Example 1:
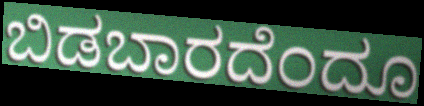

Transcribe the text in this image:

ಬಿಡಬಾರದೆಂದೂ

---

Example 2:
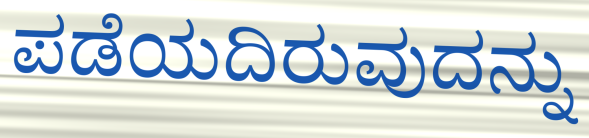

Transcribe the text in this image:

ಪಡೆಯದಿರುವುದನ್ನು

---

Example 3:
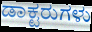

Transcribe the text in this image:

ಡಾಕ್ಟರುಗಳು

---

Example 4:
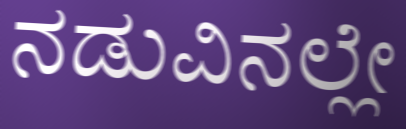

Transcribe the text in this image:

ನಡುವಿನಲ್ಲೇ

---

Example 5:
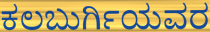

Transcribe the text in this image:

ಕಲಬುರ್ಗಿಯವರ